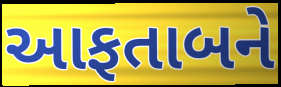
આફતાબને